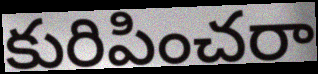
కురిపించరా